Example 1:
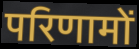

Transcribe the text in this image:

परिणामों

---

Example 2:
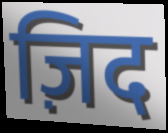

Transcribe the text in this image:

ज़िद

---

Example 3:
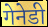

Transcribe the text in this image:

गेनेडी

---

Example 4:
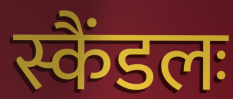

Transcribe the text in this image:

स्कैंडलः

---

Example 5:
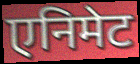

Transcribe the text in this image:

एनिमेट